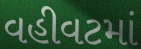
વહીવટમાં